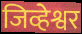
जिव्हेश्वर